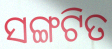
ସଙ୍ଗଟିତ